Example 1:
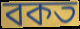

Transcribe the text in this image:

বকত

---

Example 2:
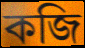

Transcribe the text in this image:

কজি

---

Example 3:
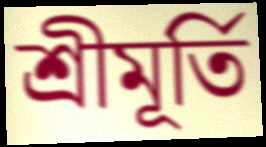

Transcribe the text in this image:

শ্রীমূর্তি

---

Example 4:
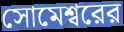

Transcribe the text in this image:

সোমেশ্বরের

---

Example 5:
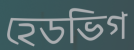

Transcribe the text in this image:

হেডভিগ